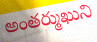
అంతర్ముఖుని